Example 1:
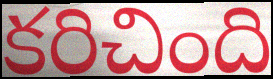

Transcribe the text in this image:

కరిచింది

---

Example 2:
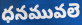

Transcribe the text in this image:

ధనమువలె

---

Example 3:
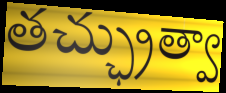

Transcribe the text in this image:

తచ్ఛ్రుత్వా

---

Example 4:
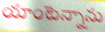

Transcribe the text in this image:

యాంటెన్నాను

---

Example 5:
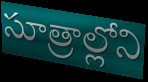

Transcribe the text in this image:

సూత్రాల్లోని